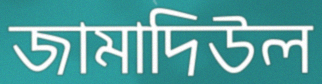
জামাদিউল